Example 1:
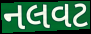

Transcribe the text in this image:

નલવટ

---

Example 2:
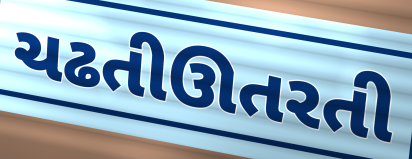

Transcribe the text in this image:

ચઢતીઊતરતી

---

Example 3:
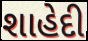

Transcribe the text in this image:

શાહેદી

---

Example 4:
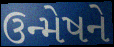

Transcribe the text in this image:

ઉન્મેષને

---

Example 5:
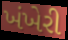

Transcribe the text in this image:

ખંખેરી